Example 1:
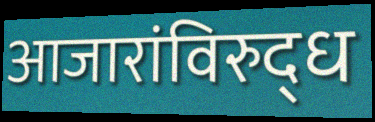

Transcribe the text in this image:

आजारांविरुद्ध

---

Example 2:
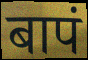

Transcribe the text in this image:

बापं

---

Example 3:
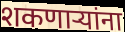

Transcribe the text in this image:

शकणार्‍यांना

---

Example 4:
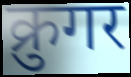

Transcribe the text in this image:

क्रुगर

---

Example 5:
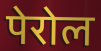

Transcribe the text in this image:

पेरोल